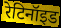
रेटिनॉइड